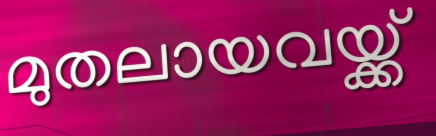
മുതലായവയ്ക്ക്